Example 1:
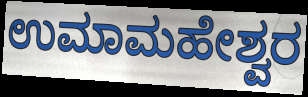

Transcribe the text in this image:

ಉಮಾಮಹೇಶ್ವರ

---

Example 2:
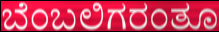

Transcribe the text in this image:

ಬೆಂಬಲಿಗರಂತೂ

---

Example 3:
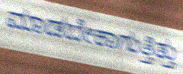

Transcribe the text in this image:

ಮಾಡಬೇಕಾಗುತ್ತಿತ್ತು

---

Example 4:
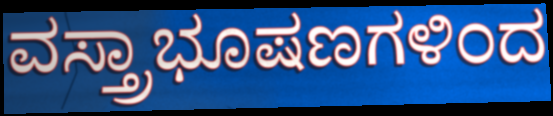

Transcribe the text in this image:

ವಸ್ತ್ರಾಭೂಷಣಗಳಿಂದ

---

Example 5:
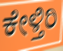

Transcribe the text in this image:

ಕೇಳ್ತಿರಿ